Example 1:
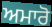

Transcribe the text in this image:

ਅਮਾਰੋ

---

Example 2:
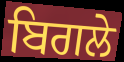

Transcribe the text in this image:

ਬਿਗਲੇ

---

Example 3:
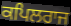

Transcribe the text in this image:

ਕਪਿਲਰਾਜ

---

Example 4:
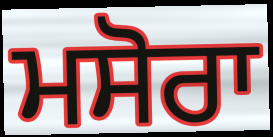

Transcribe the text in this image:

ਮਸੋਰਾ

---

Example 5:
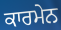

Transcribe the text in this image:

ਕਾਰਮੇਨ